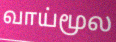
வாய்மூல